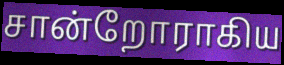
சான்றோராகிய